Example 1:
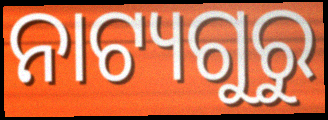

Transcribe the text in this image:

ନାଟ୍ୟଗୁରୁ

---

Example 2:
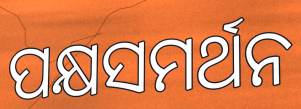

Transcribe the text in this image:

ପକ୍ଷସମର୍ଥନ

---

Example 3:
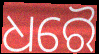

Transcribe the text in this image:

ଧରୈ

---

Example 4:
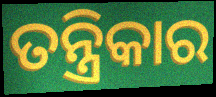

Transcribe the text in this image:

ତନ୍ତ୍ରିକାର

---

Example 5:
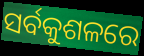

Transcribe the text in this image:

ସର୍ବକୁଶଳରେ